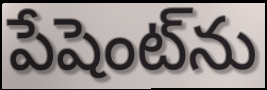
పేషెంట్‌ను